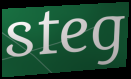
steg